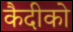
कैदीको